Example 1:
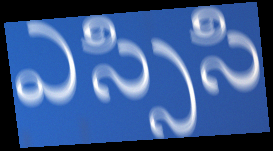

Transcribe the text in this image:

ఎస్సిసి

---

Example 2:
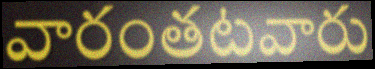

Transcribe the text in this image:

వారంతటవారు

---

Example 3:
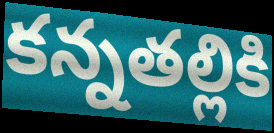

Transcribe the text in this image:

కన్నతల్లికి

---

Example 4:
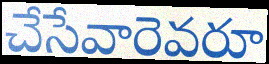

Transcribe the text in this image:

చేసేవారెవరూ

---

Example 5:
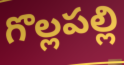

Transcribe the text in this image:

గొల్లపల్లి